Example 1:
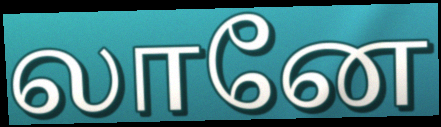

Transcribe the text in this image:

லானே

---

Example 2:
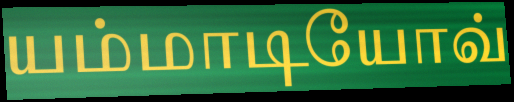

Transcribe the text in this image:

யம்மாடியோவ்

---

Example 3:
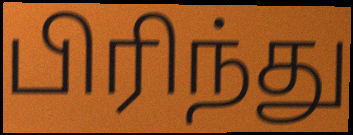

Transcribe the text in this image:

பிரிந்து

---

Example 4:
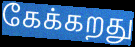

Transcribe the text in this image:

கேக்கறது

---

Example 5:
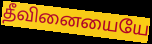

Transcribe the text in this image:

தீவினையையே